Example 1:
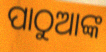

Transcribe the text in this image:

ପାଠୁଆଙ୍କ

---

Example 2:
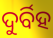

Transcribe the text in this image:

ଦୁର୍ବିହ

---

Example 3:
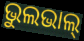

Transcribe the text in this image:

ଭୁଲଭାଲ୍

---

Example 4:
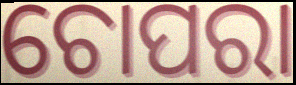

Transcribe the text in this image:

ଚୋପରା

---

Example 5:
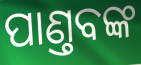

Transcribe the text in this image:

ପାଣ୍ତବଙ୍କ